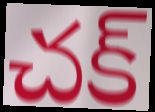
చక్